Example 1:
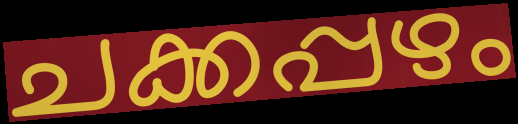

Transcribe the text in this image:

ചക്കപ്പഴം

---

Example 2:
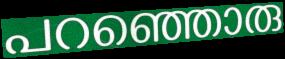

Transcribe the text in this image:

പറഞ്ഞൊരു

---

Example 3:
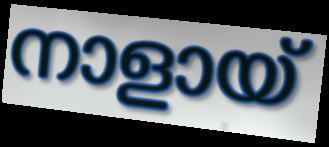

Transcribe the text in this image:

നാളായ്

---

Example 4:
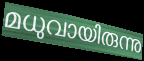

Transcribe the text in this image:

മധുവായിരുന്നു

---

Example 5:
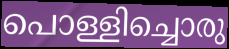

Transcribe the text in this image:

പൊള്ളിച്ചൊരു